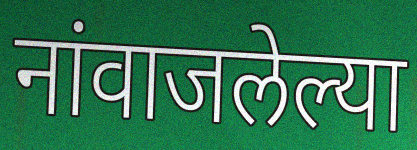
नांवाजलेल्या